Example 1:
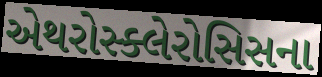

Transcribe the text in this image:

એથરોસ્ક્લેરોસિસના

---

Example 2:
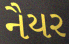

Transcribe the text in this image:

નૈયર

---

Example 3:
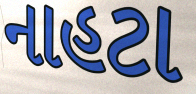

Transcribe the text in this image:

નાહટા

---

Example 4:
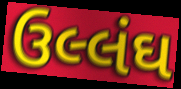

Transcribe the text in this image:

ઉલ્લંઘ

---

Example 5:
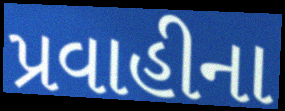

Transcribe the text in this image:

પ્રવાહીના